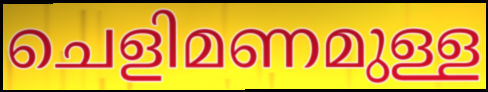
ചെളിമണമുള്ള